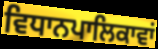
ਵਿਧਾਨਪਾਲਿਕਾਵਾਂ